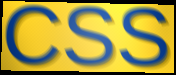
CSS